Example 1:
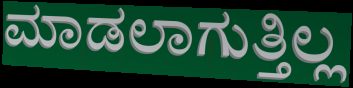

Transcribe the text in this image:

ಮಾಡಲಾಗುತ್ತಿಲ್ಲ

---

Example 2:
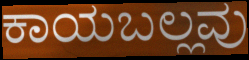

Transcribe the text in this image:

ಕಾಯಬಲ್ಲವು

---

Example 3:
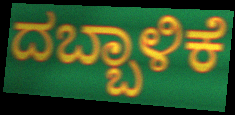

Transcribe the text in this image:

ದಬ್ಬಾಳಿಕೆ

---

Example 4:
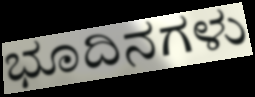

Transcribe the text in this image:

ಭೂದಿನಗಳು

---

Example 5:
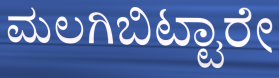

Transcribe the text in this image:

ಮಲಗಿಬಿಟ್ಟಾರೇ